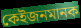
কেইজনমানক